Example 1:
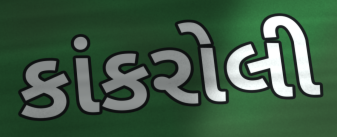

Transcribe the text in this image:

કાંકરોલી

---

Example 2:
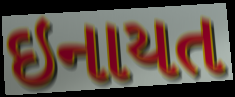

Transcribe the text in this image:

ઇનાયત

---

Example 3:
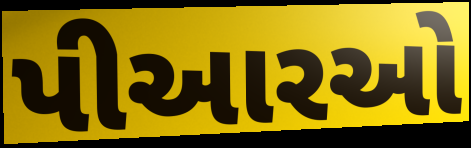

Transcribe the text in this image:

પીઆરઓ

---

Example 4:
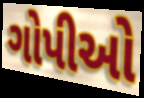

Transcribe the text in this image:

ગોપીઓ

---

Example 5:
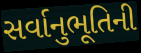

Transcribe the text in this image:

સર્વાનુભૂતિની